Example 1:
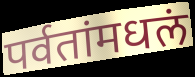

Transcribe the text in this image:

पर्वतांमधलं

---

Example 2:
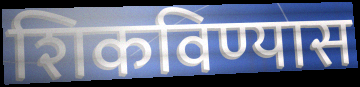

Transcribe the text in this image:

शिकविण्यास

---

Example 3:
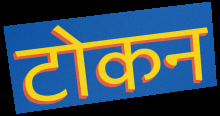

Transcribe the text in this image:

टोकन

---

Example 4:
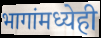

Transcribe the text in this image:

भागांमध्येही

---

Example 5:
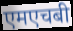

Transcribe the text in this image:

एमएचबी